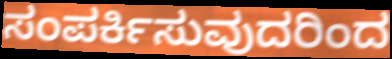
ಸಂಪರ್ಕಿಸುವುದರಿಂದ